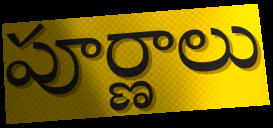
పూర్ణాలు